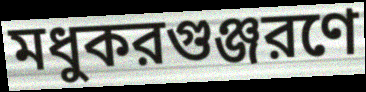
মধুকরগুঞ্জরণে